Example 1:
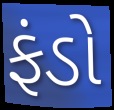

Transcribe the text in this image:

ફંડો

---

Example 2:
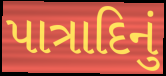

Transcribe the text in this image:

પાત્રાદિનું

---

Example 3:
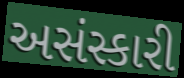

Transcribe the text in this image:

અસંસ્કારી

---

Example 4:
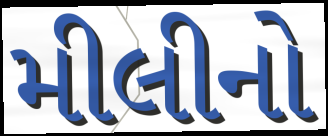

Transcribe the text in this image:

મીલીનો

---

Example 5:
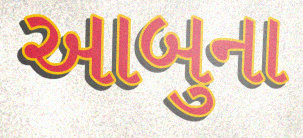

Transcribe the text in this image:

આબુના